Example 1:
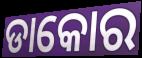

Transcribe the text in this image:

ଡାକୋର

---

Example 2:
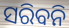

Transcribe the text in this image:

ସରିବନି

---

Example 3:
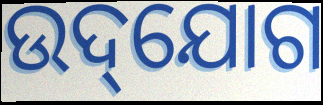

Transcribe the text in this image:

ଉଦ୍‌ଯୋଗ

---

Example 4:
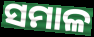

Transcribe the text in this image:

ସମାଳ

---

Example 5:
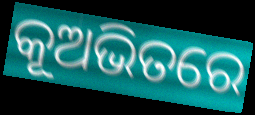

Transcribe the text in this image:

କୂଅଭିତରେ